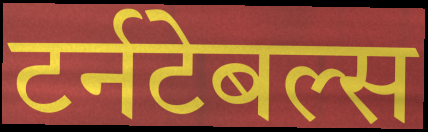
टर्नटेबल्स